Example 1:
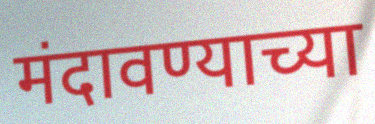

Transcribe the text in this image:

मंदावण्याच्या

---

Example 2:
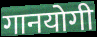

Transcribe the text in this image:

गानयोगी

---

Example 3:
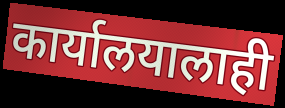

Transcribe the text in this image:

कार्यालयालाही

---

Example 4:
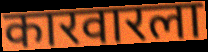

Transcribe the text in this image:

कारवारला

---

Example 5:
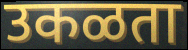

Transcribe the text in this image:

उकळता